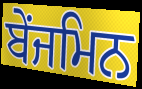
ਬੇਂਜਮਿਨ